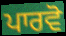
ਪਾਰਵੋ